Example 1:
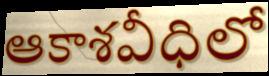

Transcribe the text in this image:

ఆకాశవీధిలో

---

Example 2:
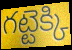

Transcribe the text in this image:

గట్టెక్కి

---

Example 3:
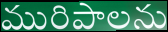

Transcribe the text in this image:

మురిపాలను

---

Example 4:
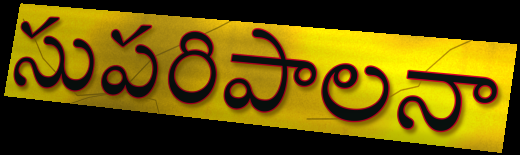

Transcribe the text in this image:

సుపరిపాలనా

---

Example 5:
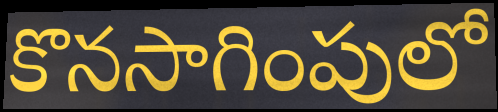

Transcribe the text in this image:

కొనసాగింపులో